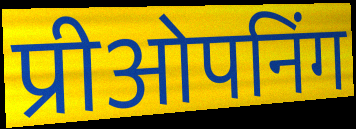
प्रीओपनिंग